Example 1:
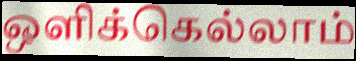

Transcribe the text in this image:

ஒளிக்கெல்லாம்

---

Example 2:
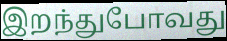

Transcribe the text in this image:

இறந்துபோவது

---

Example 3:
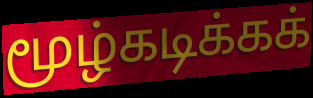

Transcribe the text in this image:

மூழ்கடிக்கக்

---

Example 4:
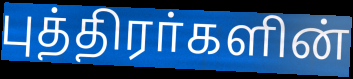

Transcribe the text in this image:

புத்திரர்களின்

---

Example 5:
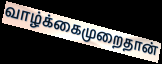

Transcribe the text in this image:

வாழ்க்கைமுறைதான்